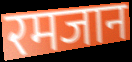
रमजान